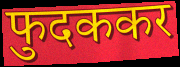
फुदककर